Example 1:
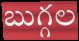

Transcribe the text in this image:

బుగ్గల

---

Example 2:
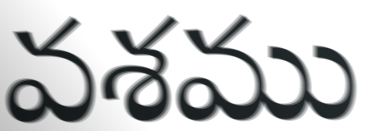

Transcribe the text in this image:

వశము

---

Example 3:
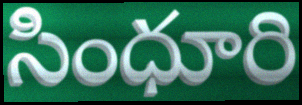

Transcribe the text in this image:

సింధూరి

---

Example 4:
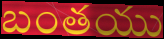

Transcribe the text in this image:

బంతయు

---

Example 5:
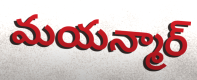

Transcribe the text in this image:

మయన్మార్